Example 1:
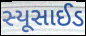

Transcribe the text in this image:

સ્યૂસાઈડ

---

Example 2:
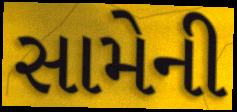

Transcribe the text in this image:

સામેની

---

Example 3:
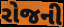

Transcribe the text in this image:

રોજની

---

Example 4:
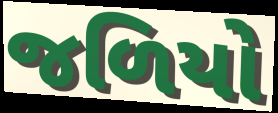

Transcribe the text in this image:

જળિયો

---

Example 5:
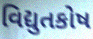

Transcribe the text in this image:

વિદ્યુતકોષ